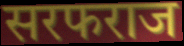
सरफराज